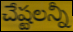
చేష్టలన్నీ